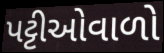
પટ્ટીઓવાળો